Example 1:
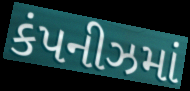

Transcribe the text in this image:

કંપનીઝમાં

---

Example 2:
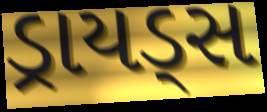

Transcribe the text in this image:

ડ્રાયડ્સ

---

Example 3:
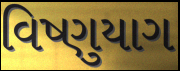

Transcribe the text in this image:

વિષ્ણુયાગ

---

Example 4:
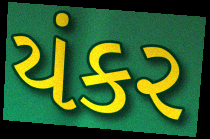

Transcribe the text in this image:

યંકર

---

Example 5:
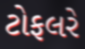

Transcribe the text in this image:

ટોફલરે